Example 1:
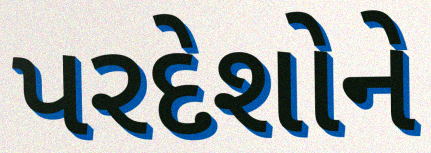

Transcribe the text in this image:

પરદેશોને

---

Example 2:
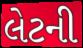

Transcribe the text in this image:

લેટની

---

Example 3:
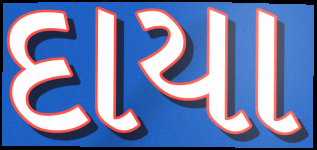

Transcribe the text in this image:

દાયા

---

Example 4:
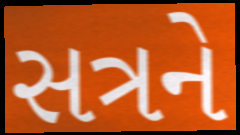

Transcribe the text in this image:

સત્રને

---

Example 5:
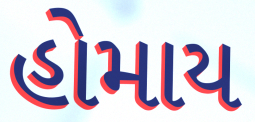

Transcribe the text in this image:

હોમાય